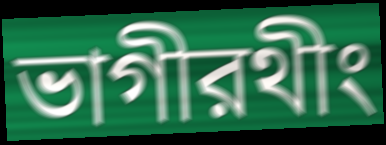
ভাগীরথীং